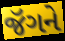
જૅગને